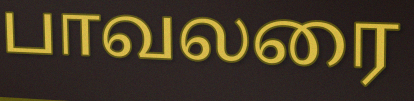
பாவலரை